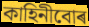
কাহিনীবোৰ